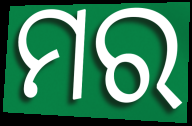
ମର